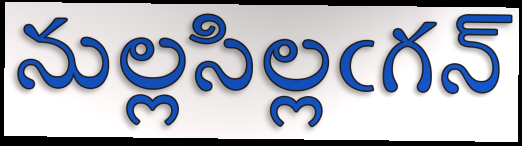
నుల్లసిల్లఁగన్